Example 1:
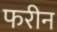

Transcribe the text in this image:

फरीन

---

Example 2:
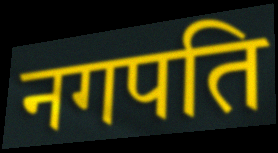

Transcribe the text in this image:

नगपति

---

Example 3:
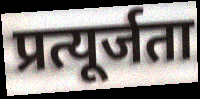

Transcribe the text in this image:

प्रत्यूर्जता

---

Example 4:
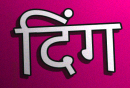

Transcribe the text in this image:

दिंग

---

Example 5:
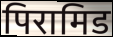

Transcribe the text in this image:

पिरामिड